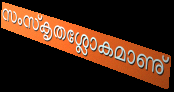
സംസ്കൃതശ്ലോകമാണു്